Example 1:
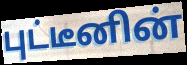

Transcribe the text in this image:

புட்டீனின்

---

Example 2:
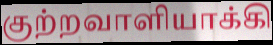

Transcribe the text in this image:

குற்றவாளியாக்கி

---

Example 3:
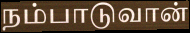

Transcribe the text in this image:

நம்பாடுவான்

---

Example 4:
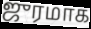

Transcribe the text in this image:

ஜுரமாக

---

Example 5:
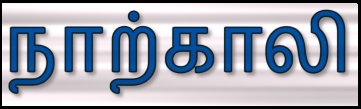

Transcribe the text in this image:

நாற்காலி